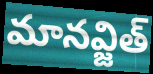
మానవ్జిత్